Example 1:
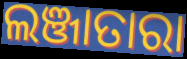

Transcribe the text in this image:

ଲଞ୍ଜାତାରା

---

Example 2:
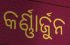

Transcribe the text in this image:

କର୍ଣ୍ଣାର୍ଜୁନ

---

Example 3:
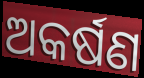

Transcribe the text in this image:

ଅକର୍ଷଣ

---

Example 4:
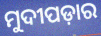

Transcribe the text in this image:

ମୁଦୀପଡ଼ାର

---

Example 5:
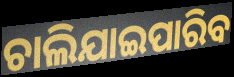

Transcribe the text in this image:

ଚାଲିଯାଇପାରିବ